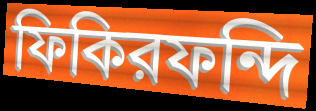
ফিকিরফন্দি